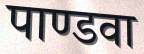
पाण्डवा